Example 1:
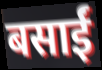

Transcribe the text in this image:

बसाईं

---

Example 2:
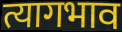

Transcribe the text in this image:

त्यागभाव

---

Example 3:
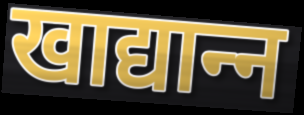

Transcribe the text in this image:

खाद्यान्‍न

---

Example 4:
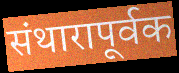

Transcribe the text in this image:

संथारापूर्वक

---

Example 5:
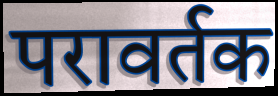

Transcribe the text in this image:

परावर्तक